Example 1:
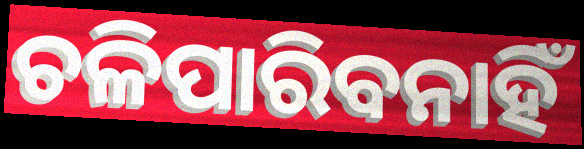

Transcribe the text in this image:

ଚଳିପାରିବନାହିଁ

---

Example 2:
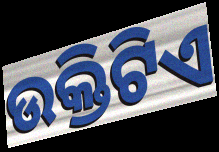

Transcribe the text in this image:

ଉକ୍ତିଟିଏ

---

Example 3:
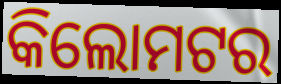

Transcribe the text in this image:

କିଲୋମଟର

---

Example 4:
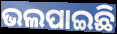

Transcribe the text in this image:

ଭଲପାଇଛି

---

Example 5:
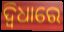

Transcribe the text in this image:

ଦ୍ଵିଧାରେ